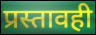
प्रस्तावही